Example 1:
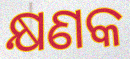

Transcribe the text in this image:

କ୍ଷଣକ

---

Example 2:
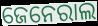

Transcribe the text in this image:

ଜେନେରାଲ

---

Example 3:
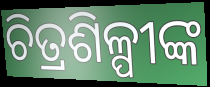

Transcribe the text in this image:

ଚିତ୍ରଶିଳ୍ପୀଙ୍କ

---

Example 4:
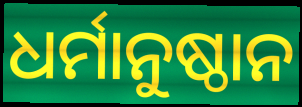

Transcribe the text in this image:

ଧର୍ମାନୁଷ୍ଠାନ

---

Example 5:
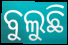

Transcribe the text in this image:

ବୁଲୁଛି